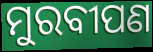
ମୁରବୀପଣ